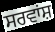
ਸਰਵਾਂਸ਼